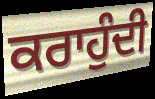
ਕਰਾਹੁੰਦੀ